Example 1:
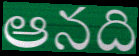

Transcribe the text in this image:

ఆనది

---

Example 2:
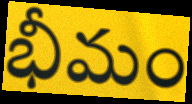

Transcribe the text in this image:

భీమం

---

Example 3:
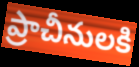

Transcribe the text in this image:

ప్రాచీనులకి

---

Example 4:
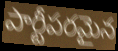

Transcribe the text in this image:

పార్టీపరమైన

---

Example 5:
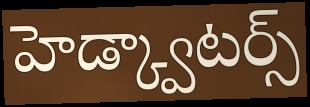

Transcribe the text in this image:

హెడ్క్వాటర్స్